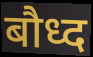
बौध्द